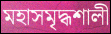
মহাসমৃদ্ধশালী